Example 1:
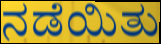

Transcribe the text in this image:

ನಡೆಯಿತು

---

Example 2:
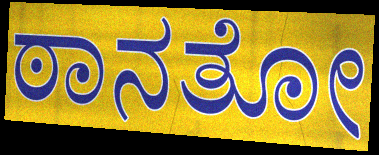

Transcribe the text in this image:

ಠಾನತೋ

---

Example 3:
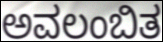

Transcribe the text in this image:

ಅವಲಂಬಿತ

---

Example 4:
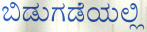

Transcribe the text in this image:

ಬಿಡುಗಡೆಯಲ್ಲಿ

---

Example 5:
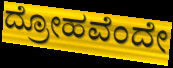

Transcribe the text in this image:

ದ್ರೋಹವೆಂದೇ